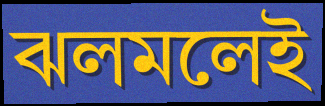
ঝলমলেই